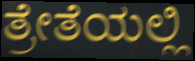
ತ್ರೇತೆಯಲ್ಲಿ